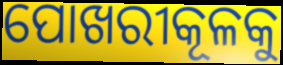
ପୋଖରୀକୂଳକୁ